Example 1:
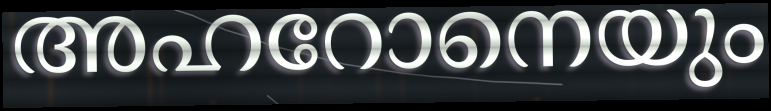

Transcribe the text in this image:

അഹറോനെയും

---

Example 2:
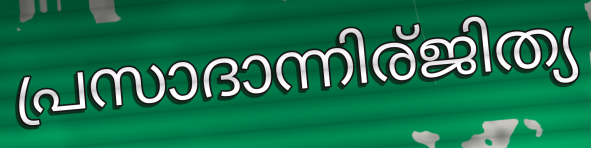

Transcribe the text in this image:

പ്രസാദാന്നിര്ജിത്യ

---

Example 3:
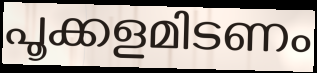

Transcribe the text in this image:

പൂക്കളമിടണം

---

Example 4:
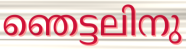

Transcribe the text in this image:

ഞെട്ടലിനു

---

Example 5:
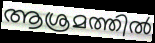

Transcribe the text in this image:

ആശ്രമത്തിൽ